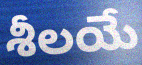
శీలయే